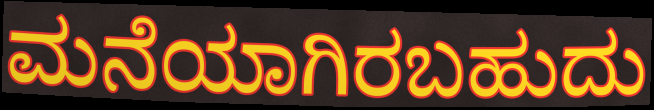
ಮನೆಯಾಗಿರಬಹುದು